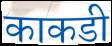
काकडी